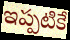
ఇప్పటికే